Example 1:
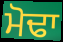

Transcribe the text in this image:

ਮੋਢਾ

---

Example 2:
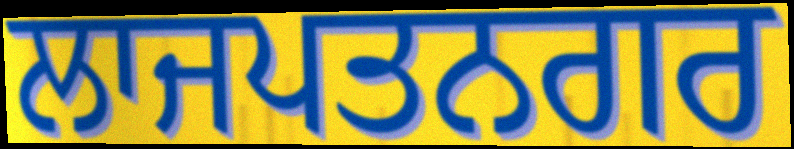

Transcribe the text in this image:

ਲਾਜਪਤਨਗਰ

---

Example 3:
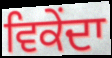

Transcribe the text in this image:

ਵਿਕੇਂਦਾ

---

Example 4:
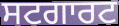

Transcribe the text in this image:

ਸਟਗਾਰਟ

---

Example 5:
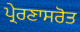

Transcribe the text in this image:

ਪ੍ਰੇਰਣਾਸਰੋਤ